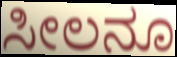
ಸೀಲನೂ